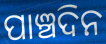
ପାଞ୍ଚଦିନ